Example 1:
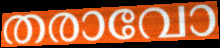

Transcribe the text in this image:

തരാവോ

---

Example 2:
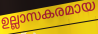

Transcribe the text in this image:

ഉല്ലാസകരമായ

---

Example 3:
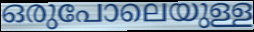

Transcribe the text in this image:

ഒരുപോലെയുള്ള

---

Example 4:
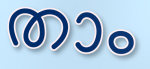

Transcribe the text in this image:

താം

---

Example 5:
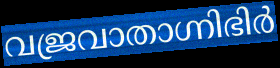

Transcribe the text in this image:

വജ്രവാതാഗ്നിഭിർ